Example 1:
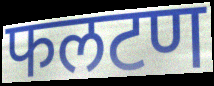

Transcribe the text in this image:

फलटण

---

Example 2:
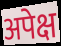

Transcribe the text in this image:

अपेक्ष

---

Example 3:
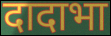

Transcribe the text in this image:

दादाभा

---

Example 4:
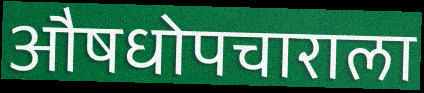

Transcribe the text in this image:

औषधोपचाराला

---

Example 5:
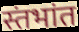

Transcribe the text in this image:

स्तंभांत